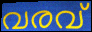
വരവ്